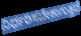
ನಿರ್ಧರಿಸಬೇಕಾಗುತ್ತದೆ